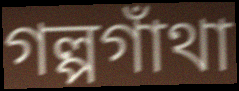
গল্পগাঁথা